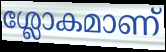
ശ്ലോകമാണ്